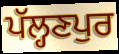
ਪੱਲ੍ਹਣਪੁਰ